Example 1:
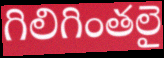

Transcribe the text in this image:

గిలిగింతలై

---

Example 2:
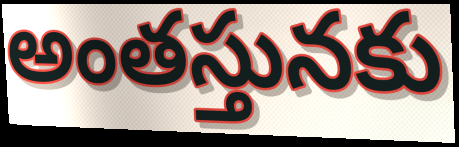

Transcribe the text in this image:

అంతస్తునకు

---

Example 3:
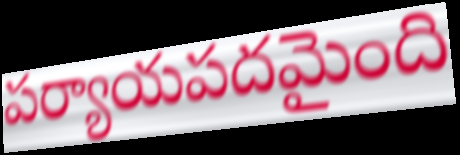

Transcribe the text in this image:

పర్యాయపదమైంది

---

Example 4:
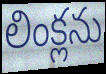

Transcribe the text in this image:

లింక్లను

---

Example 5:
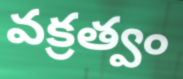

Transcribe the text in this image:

వక్రత్వం